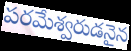
పరమేశ్వరుడనైన